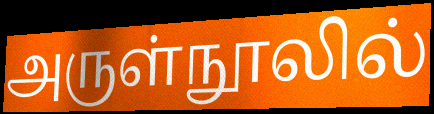
அருள்நூலில்